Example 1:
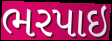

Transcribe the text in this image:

ભરપાઇ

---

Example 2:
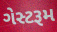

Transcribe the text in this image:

ગેસ્ટરૂમ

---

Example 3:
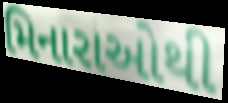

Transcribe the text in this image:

મિનારાઓથી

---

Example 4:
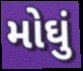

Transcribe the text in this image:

મોઘું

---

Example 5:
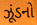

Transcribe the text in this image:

ઝૂંડનો